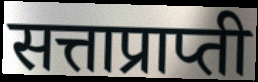
सत्ताप्राप्ती